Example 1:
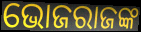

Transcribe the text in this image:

ଭୋଜରାଜଙ୍କ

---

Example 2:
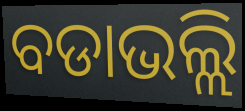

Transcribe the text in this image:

ବଡାଭଲ୍ଲି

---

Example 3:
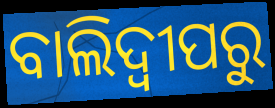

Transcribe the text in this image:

ବାଲିଦ୍ୱୀପରୁ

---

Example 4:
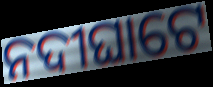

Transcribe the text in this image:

ନଦୀଘାଟେ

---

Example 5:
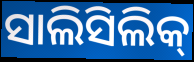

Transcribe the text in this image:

ସାଲିସିଲିକ୍